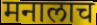
मनालाच